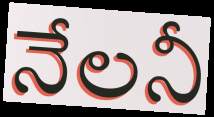
నేలనీ